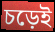
চড়েই